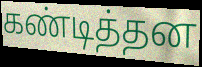
கண்டித்தன